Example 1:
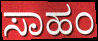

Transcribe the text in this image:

ಸಾಹಂ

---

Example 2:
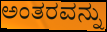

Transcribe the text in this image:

ಅಂತರವನ್ನು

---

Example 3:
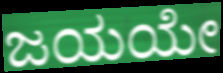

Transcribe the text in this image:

ಜಯಯೇ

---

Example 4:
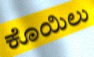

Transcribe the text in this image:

ಕೊಯಿಲು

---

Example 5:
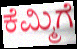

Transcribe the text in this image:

ಕೆಮ್ಮಿಗೆ